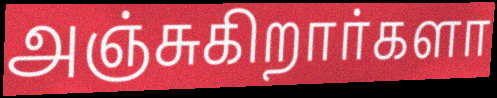
அஞ்சுகிறார்களா